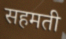
सहमती